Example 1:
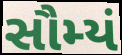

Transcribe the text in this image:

સૌમ્યં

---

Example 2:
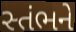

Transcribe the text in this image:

સ્તંભને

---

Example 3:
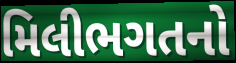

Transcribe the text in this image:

મિલીભગતનો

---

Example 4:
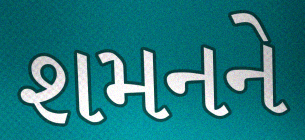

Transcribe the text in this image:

શમનને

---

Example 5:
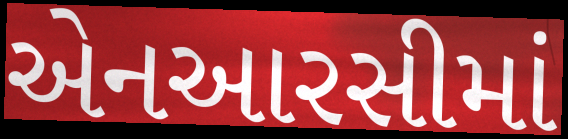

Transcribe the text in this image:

એનઆરસીમાં